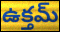
ఉక్తమ్